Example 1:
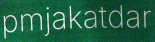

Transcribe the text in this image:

pmjakatdar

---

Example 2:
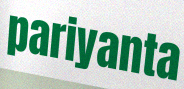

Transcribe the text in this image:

pariyanta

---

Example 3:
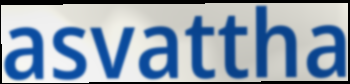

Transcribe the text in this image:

asvattha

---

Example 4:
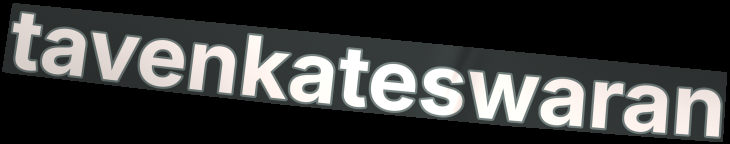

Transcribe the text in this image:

tavenkateswaran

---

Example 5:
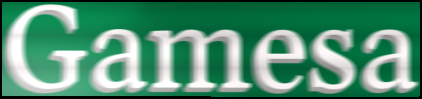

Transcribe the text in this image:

Gamesa